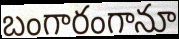
బంగారంగానూ